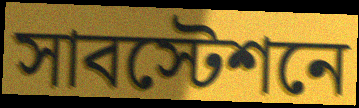
সাবস্টেশনে